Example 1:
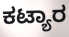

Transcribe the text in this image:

ಕಟ್ಯಾರ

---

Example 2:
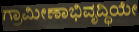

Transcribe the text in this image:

ಗ್ರಾಮೀಣಾಭಿವೃದ್ಧಿಯೇ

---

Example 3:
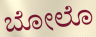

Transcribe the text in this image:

ಬೋಲೊ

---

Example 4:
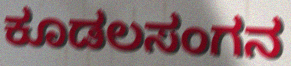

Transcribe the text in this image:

ಕೂಡಲಸಂಗನ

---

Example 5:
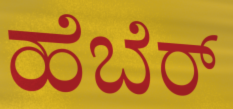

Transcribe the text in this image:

ಹೆಬೆರ್